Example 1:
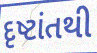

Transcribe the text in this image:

દૃષ્ટાંતથી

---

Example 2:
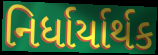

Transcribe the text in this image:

નિર્ધાર્યાર્થક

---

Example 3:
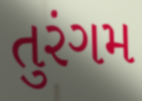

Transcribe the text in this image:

તુરંગમ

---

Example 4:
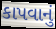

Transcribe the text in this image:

કાપવાનું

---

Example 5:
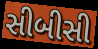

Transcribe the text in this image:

સીબીસી